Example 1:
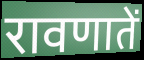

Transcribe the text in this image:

रावणातें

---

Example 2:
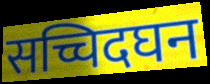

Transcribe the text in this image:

सच्चिदघन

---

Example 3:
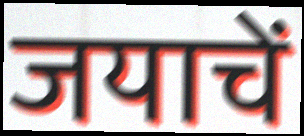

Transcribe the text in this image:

जयाचें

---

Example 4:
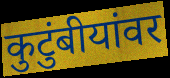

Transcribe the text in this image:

कुटुंबीयांवर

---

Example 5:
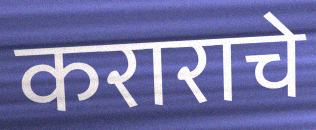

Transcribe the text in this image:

कराराचे